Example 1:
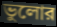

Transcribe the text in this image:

ভুলোর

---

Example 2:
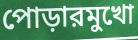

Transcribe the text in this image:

পোড়ারমুখো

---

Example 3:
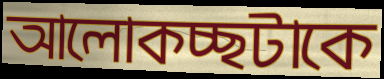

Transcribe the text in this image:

আলোকচ্ছটাকে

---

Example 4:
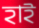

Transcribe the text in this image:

হাই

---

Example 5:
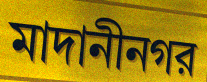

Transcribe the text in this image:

মাদানীনগর